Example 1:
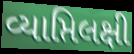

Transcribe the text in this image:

વ્યાપ્તિલક્ષી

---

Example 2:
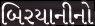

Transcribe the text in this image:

બિરયાનીનો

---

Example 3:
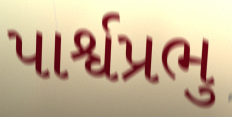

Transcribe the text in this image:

પાર્શ્વપ્રભુ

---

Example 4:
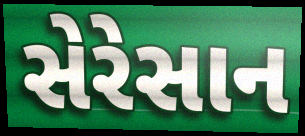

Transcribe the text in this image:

સેરેસાન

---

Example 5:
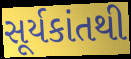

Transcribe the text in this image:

સૂર્યકાંતથી